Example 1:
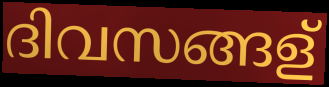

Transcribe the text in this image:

ദിവസങ്ങള്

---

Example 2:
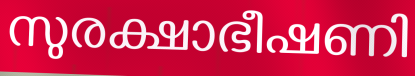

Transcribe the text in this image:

സുരക്ഷാഭീഷണി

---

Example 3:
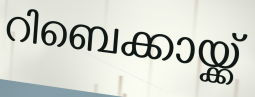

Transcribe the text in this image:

റിബെക്കായ്ക്ക്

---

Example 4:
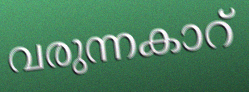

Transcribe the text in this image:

വരുന്നകാറ്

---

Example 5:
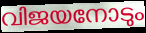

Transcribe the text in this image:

വിജയനോടും